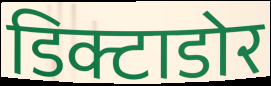
डिक्टाडोर